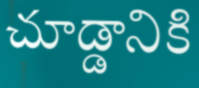
చూడ్డానికి